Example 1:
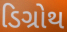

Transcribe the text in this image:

ડિગ્રોથ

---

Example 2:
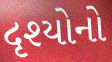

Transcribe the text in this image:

દૃશ્યોનો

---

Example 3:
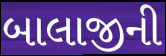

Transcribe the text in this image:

બાલાજીની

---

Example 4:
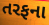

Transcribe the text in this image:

તરફના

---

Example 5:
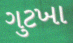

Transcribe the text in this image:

ગુટખા